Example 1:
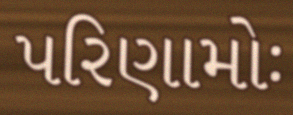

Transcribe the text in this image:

પરિણામોઃ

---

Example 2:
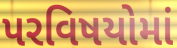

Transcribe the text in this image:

પરવિષયોમાં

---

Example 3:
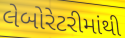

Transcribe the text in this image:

લેબોરેટરીમાંથી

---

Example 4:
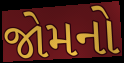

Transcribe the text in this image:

જોમનો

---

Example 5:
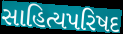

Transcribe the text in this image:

સાહિત્યપરિષદ